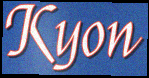
Kyon